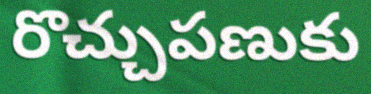
రొచ్చుపణుకు